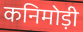
कनिमोड़ी